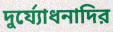
দুর্য্যোধনাদির